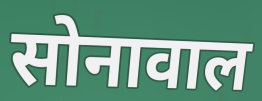
सोनावाल